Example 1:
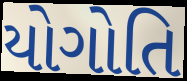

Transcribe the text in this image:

યોગોતિ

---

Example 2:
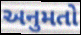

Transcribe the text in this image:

અનુમતો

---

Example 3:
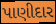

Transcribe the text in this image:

પાણીદાર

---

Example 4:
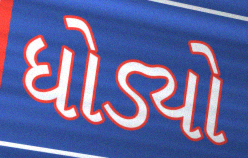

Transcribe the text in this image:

ધોડ્યો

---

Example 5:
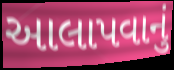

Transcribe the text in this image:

આલાપવાનું